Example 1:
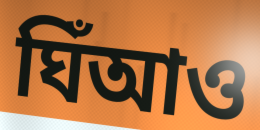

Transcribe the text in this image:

ঘিঁআও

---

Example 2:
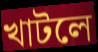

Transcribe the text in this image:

খাটলে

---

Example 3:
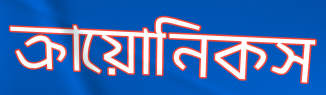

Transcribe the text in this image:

ক্রায়োনিকস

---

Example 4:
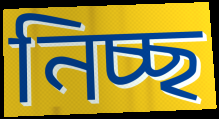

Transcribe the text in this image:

নিচ্ছ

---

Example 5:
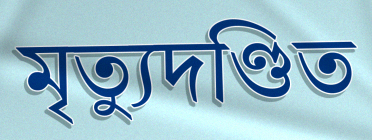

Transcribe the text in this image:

মৃত্যুদণ্ডিত